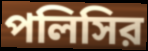
পলিসির